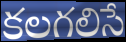
కలగలిసే